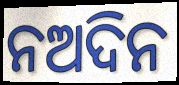
ନଅଦିନ